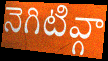
నెగిటివ్గా